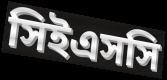
সিইএসসি